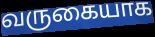
வருகையாக